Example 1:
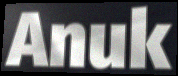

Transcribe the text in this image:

Anuk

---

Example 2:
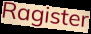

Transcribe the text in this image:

Ragister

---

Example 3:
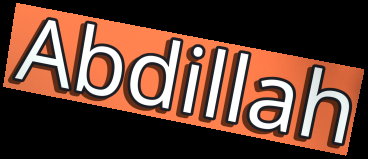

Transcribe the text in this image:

Abdillah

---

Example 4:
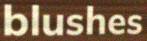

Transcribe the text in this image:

blushes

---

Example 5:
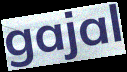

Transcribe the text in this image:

gajal